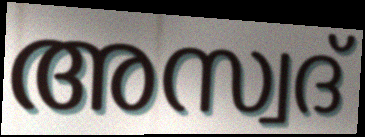
അസ്വദ്